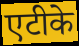
एटीके